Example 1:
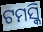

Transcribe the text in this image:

ଟମସ୍କି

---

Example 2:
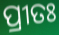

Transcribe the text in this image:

ପ୍ରୀତଃ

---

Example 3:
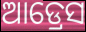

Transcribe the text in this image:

ଆଡ୍ରେସ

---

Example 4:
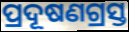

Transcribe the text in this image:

ପ୍ରଦୂଷଣଗ୍ରସ୍ତ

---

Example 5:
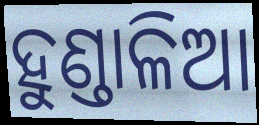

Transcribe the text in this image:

ହୁଣ୍ଡାଳିଆ